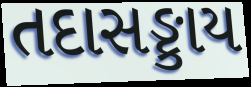
તદાસઙ્કાય